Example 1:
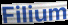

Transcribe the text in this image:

Filium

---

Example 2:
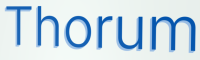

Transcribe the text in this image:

Thorum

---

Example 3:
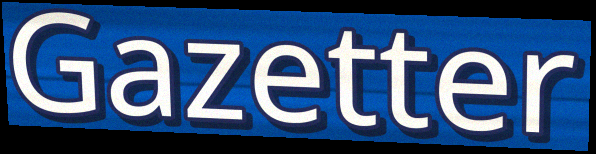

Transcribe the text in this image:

Gazetter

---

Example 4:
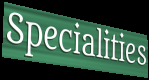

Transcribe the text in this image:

Specialities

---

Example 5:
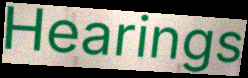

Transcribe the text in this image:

Hearings